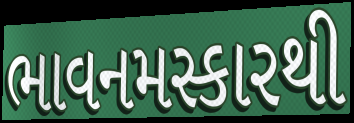
ભાવનમસ્કારથી